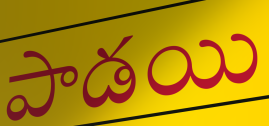
పాడయి